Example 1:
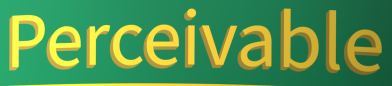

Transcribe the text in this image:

Perceivable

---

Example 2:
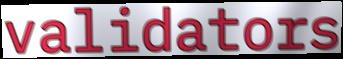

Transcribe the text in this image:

validators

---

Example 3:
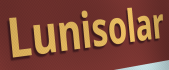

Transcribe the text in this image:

Lunisolar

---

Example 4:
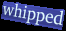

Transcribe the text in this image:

whipped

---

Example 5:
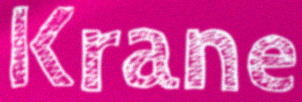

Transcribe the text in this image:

Krane